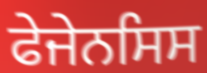
ਫੇਜੇਨਸਿਸ